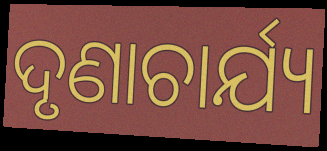
ଦୃଣାଚାର୍ଯ୍ୟ